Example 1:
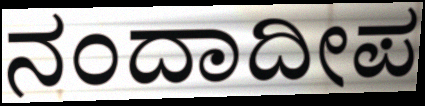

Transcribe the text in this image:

ನಂದಾದೀಪ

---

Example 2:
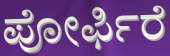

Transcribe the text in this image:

ಪೋರ್ಫಿರೆ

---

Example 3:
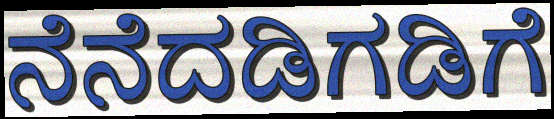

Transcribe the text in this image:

ನೆನೆದಡಿಗಡಿಗೆ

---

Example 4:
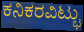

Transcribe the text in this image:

ಕನಿಕರವಿಟ್ಟು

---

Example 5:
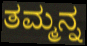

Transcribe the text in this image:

ತಮ್ಮನ್ನ